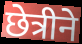
छेत्रीने